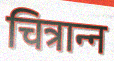
चित्रान्न